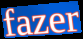
fazer